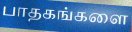
பாதகங்களை